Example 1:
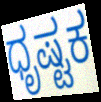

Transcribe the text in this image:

ಧೃಷ್ಟಕ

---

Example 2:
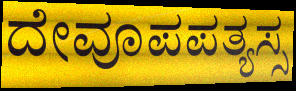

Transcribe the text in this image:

ದೇವೂಪಪತ್ಯಸ್ಸ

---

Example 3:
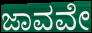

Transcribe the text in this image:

ಜಾವವೇ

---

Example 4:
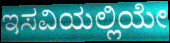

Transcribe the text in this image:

ಇಸವಿಯಲ್ಲಿಯೇ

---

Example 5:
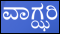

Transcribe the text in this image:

ವಾಗ್ಝರಿ